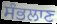
ਸੰਭਲਾਣ